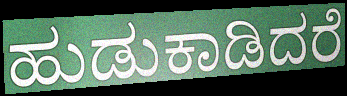
ಹುಡುಕಾಡಿದರೆ